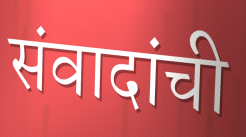
संवादांची